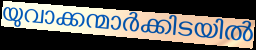
യുവാക്കന്മാർക്കിടയിൽ